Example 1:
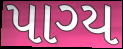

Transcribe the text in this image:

પાગ્ય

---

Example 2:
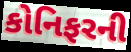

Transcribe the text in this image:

કોનિફરની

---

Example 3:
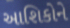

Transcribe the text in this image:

આશિકોને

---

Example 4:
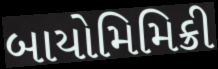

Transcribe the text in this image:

બાયોમિમિક્રી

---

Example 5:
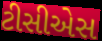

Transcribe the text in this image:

ટીસીએસ